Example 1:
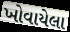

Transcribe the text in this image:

ખોવાયેલા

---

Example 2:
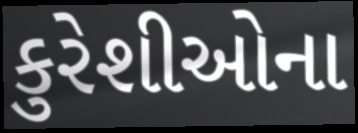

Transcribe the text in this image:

કુરેશીઓના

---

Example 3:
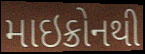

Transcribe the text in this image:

માઇક્રોનથી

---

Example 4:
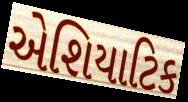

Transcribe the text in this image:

એશિયાટિક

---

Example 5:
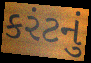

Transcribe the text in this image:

કરંટનું